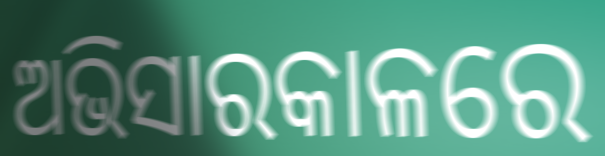
ଅଭିସାରକାଳରେ